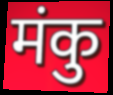
मंकु